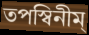
তপস্বিনীম্